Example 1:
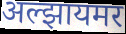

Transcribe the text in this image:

अल्झायमर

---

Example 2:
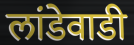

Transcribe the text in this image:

लांडेवाडी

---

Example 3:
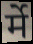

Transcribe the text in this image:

र्मे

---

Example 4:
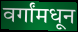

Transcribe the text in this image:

वर्गांमधून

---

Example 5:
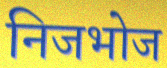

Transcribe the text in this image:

निजभोज